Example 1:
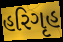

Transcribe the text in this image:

હરિગૃહ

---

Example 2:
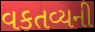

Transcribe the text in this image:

વકતવ્યની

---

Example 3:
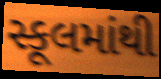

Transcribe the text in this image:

સ્કૂલમાંથી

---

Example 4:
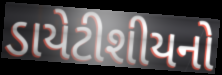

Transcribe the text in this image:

ડાયેટીશીયનો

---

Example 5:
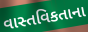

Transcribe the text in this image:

વાસ્તવિકતાના